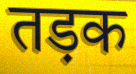
तड़क